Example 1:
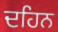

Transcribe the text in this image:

ਦਹਿਨ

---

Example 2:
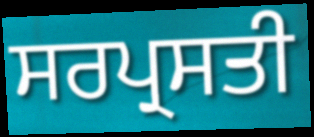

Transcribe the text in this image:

ਸਰਪ੍ਰਸਤੀ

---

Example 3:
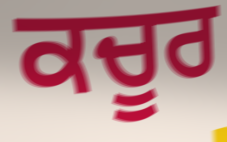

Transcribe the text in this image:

ਕਚੂਰ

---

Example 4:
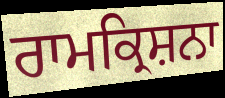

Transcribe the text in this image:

ਰਾਮਕ੍ਰਿਸ਼ਨਾ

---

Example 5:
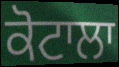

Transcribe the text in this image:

ਕੋਟਾਲਾ